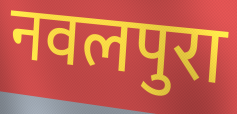
नवलपुरा